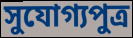
সুযোগ্যপুত্র